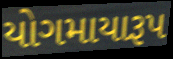
યોગમાયારૂપ